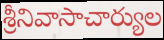
శ్రీనివాసాచార్యుల